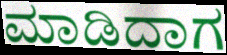
ಮಾಡಿದಾಗ